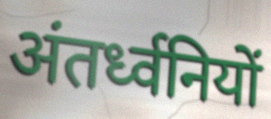
अंतर्ध्वनियों